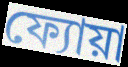
ফ্যোয়া